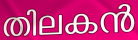
തിലകൻ